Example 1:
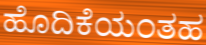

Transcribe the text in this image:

ಹೊದಿಕೆಯಂತಹ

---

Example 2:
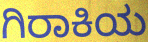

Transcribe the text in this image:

ಗಿರಾಕಿಯ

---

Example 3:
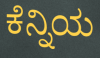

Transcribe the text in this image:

ಕೆನ್ನಿಯ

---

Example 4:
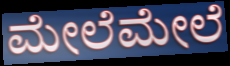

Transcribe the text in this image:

ಮೇಲೆಮೇಲೆ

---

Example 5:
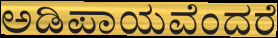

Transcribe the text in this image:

ಅಡಿಪಾಯವೆಂದರೆ